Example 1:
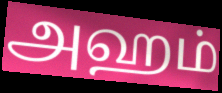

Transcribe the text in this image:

அஹம்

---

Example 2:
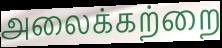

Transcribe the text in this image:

அலைக்கற்றை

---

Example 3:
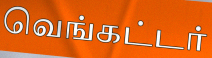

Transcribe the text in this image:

வெங்கட்டர்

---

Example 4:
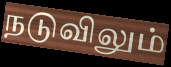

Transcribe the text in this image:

நடுவிலும்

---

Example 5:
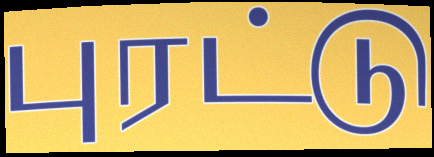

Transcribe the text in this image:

புரட்டு